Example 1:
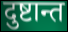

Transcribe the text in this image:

दुष्टान्त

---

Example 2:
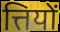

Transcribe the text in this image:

त्तियों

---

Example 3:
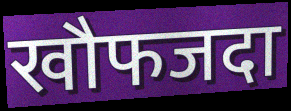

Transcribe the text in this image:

खौफजदा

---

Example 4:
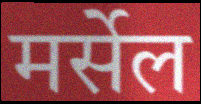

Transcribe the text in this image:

मर्सेल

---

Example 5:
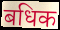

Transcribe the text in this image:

बधिक